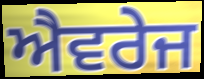
ਐਵਰੇਜ